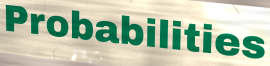
Probabilities